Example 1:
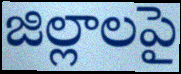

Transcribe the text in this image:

జిల్లాలపై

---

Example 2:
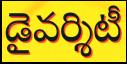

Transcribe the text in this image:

డైవర్శిటీ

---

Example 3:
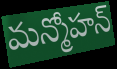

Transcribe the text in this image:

మన్మోహన్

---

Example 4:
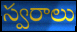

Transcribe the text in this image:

స్వరాలు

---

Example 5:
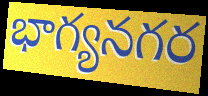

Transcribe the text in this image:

భాగ్యనగర